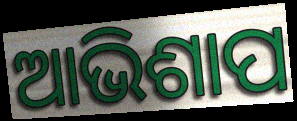
ଆଭିଶାପ